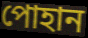
পোহান